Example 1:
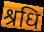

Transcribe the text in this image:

श्रधि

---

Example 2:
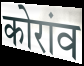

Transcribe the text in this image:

कोरांव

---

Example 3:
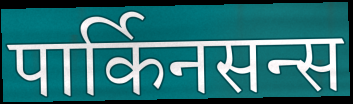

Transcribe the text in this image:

पार्किनसन्स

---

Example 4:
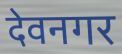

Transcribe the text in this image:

देवनगर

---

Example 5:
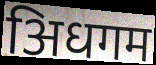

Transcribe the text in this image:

अिधगम